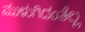
ಮುಳುಗಿದಂತೆಲ್ಲ